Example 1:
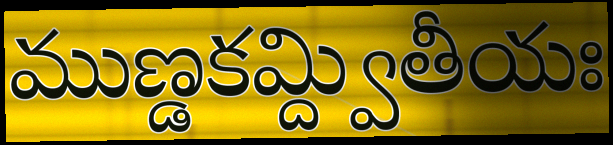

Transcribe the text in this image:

ముణ్డకమ్ద్వితీయః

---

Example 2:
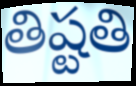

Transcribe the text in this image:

తిష్టతి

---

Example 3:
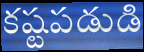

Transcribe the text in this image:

కష్టపడుడి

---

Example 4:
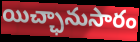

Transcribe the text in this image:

యిచ్ఛానుసారం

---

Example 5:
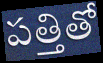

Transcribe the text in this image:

పత్తితో